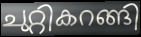
ചുറ്റികറങ്ങി